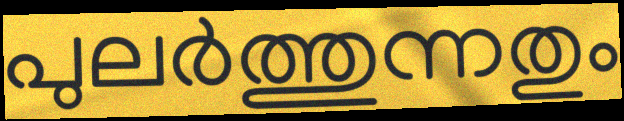
പുലർത്തുന്നതും